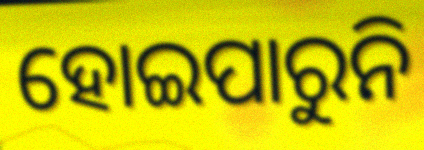
ହୋଇପାରୁନି